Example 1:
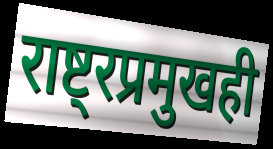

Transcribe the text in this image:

राष्ट्रप्रमुखही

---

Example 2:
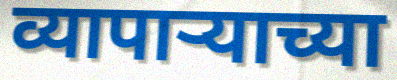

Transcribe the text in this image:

व्यापाऱ्याच्या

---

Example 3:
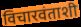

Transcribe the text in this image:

विचारवंताशी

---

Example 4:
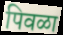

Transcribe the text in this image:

पिवळा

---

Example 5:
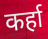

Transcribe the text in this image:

कर्हा